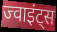
ज्वाइंट्स